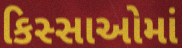
કિસ્સાઓમાં